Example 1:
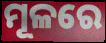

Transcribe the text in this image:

ମୂଳରେ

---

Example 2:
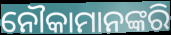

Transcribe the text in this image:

ନୌକାମାନଙ୍କରି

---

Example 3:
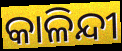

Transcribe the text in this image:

କାଳିନ୍ଦୀ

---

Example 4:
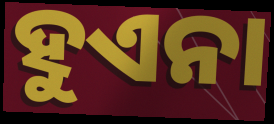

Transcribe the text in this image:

ହୁଏନା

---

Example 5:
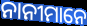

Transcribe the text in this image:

ନାନୀମାନେ